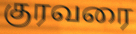
குரவரை